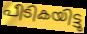
പീടികയിട്ടു